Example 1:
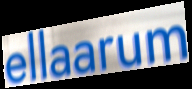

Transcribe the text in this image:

ellaarum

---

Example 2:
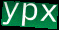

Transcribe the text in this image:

ypx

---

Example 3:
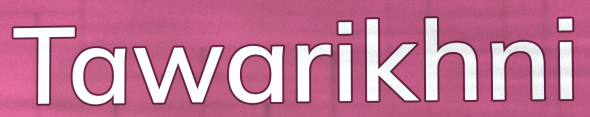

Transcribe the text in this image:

Tawarikhni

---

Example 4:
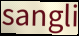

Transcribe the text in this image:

sangli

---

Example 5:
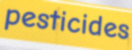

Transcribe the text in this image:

pesticides